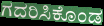
ಗದರಿಸಿಕೊಂಡ